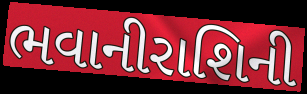
ભવાનીરાશિની